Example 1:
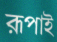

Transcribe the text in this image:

রূপাই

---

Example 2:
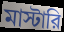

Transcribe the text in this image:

মাস্টারি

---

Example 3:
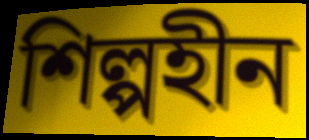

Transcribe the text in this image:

শিল্পহীন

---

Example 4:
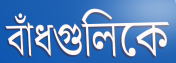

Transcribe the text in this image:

বাঁধগুলিকে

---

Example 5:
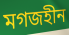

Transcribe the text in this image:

মগজহীন